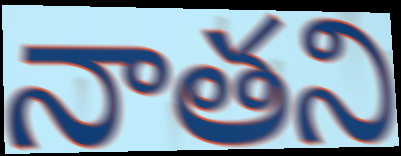
నాతని